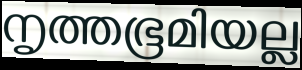
നൃത്തഭൂമിയല്ല